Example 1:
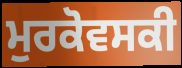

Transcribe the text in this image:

ਮੁਰਕੋਵਸਕੀ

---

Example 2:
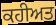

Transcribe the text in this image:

ਕਹੀਅਤ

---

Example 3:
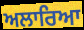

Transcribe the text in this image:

ਅਲਾਰਿਆ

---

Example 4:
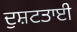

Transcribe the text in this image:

ਦੁਸ਼ਟਤਾਈ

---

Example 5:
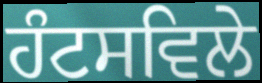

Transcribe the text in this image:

ਹੰਟਸਵਿਲੇ